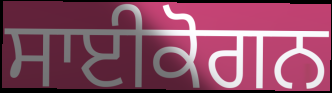
ਸਾਈਕੋਗਨ